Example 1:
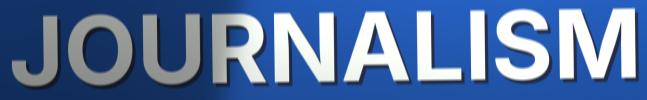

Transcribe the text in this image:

JOURNALISM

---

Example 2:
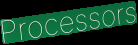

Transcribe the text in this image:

Processors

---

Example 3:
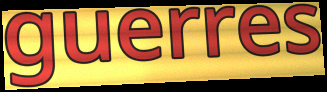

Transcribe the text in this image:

guerres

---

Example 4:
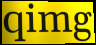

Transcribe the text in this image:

qimg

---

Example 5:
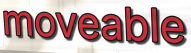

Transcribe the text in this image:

moveable